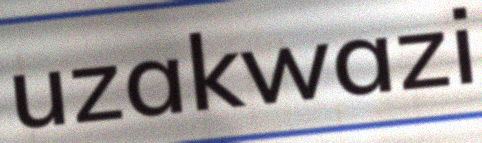
uzakwazi